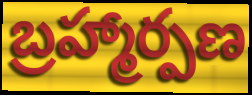
బ్రహ్మార్పణ